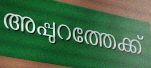
അപ്പുറത്തേക്ക്